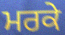
ਮਰਕੇ